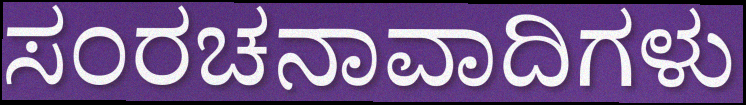
ಸಂರಚನಾವಾದಿಗಳು